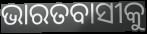
ଭାରତବାସୀକୁ